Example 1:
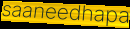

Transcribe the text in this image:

saaneedhapa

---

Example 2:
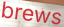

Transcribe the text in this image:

brews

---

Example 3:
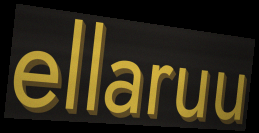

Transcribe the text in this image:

ellaruu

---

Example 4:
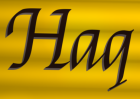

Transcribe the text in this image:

Haq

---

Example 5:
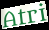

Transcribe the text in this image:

Atri